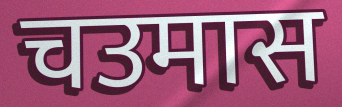
चउमास